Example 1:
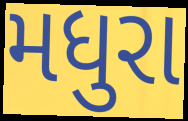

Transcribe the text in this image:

મધુરા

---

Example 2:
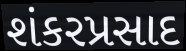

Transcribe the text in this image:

શંકરપ્રસાદ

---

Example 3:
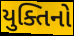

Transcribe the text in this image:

યુક્તિનો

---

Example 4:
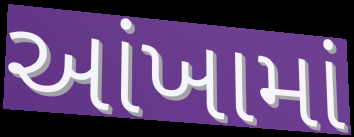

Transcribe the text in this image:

આંખામાં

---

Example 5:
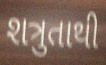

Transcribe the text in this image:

શત્રુતાથી